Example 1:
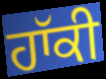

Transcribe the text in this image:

ਹਾੱਕੀ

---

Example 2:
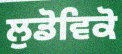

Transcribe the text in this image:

ਲੁਡੋਵਿਕੋ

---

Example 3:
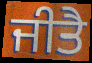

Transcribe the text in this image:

ਜੀਤੈ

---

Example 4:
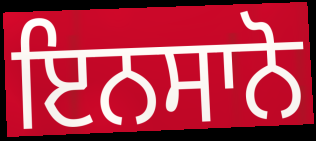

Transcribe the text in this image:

ਇਨਸਾਨੋ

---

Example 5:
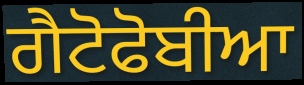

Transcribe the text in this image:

ਗੈਟੋਫੋਬੀਆ